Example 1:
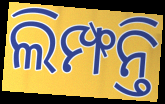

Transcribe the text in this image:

ଲିମ୍ଫନ୍ତି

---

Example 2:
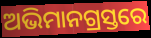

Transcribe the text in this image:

ଅଭିମାନଗ୍ରସ୍ତରେ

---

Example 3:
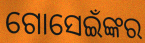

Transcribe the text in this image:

ଗୋସେଇଁଙ୍କର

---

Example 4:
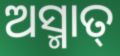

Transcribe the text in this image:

ଅସ୍ମାତ୍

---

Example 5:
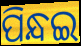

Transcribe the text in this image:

ପିନ୍ଧଇ